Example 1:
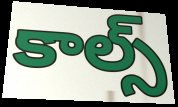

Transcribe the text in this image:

కాల్స్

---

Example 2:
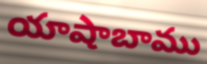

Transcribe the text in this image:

యాషాబాము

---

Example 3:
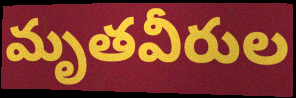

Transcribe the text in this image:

మృతవీరుల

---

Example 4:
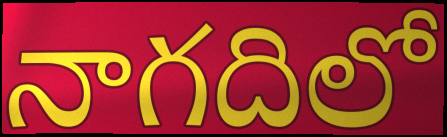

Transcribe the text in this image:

నాగదిలో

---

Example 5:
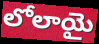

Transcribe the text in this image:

లోలాయై